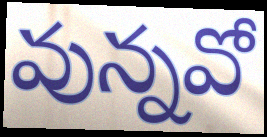
వున్నవో